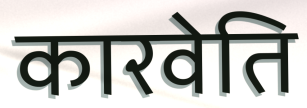
कारवेति